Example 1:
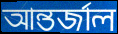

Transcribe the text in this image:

আন্তর্জাল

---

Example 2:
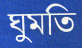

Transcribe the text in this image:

ঘুমতি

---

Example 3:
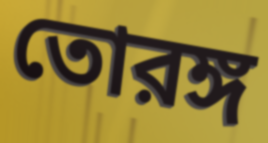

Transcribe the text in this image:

তোরঙ্গ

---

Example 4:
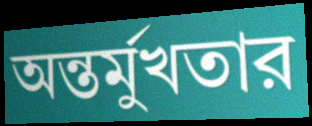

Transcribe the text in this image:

অন্তর্মুখতার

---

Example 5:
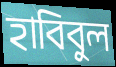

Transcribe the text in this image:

হাবিবুল